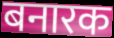
बनारक